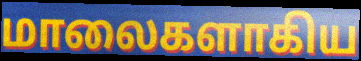
மாலைகளாகிய